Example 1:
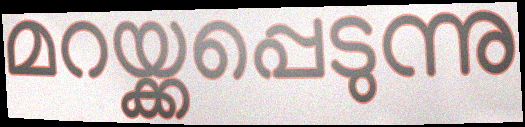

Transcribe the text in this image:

മറയ്ക്കപ്പെടുന്നു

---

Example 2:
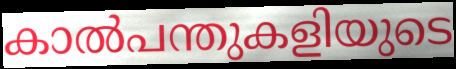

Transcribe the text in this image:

കാൽപന്തുകളിയുടെ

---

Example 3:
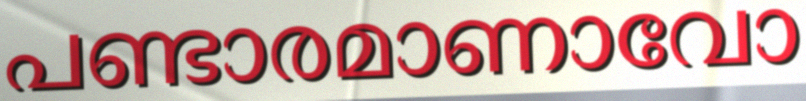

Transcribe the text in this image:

പണ്ടാരമാണാവോ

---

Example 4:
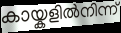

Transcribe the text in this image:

കായ്കളിൽനിന്ന്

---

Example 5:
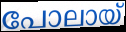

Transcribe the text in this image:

പോലായ്